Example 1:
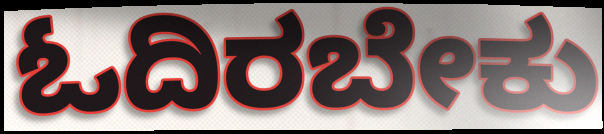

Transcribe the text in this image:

ಓದಿರಬೇಕು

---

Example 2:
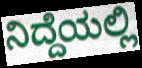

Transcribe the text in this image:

ನಿದ್ದೆಯಲ್ಲಿ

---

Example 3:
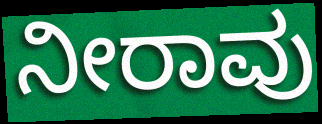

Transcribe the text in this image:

ನೀರಾವು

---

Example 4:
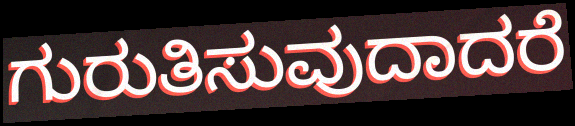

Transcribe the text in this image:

ಗುರುತಿಸುವುದಾದರೆ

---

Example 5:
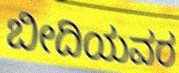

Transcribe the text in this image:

ಬೀದಿಯವರ